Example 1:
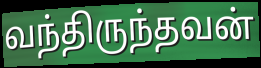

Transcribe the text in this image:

வந்திருந்தவன்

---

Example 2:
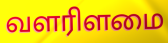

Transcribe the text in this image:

வளரிளமை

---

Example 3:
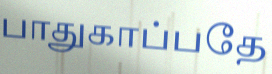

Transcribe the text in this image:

பாதுகாப்பதே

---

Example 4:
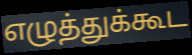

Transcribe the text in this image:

எழுத்துக்கூட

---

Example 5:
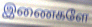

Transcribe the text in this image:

இணைகளே